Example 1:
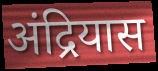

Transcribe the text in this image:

अंद्रियास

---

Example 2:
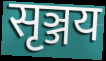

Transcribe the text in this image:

सृञ्जय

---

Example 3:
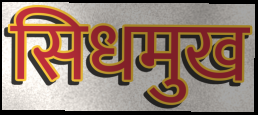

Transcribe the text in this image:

सिधमुख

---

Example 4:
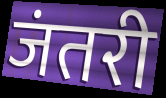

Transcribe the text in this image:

जंतरी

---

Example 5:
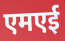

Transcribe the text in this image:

एमएई